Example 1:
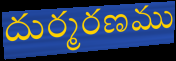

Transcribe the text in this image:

దుర్మరణము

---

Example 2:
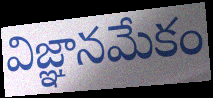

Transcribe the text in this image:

విజ్ఞానమేకం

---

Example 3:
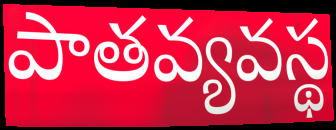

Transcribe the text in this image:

పాతవ్యవస్థ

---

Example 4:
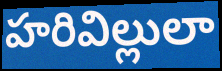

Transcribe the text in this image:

హరివిల్లులా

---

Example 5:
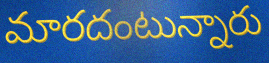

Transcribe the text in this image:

మారదంటున్నారు